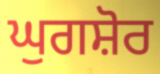
ਘੁਗਸ਼ੋਰ